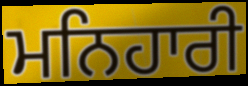
ਮਨਿਹਾਰੀ